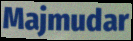
Majmudar